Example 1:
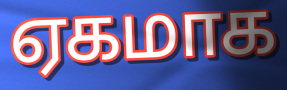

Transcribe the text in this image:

ஏகமாக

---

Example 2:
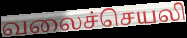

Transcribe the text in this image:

வலைச்செயலி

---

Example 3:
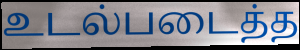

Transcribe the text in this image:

உடல்படைத்த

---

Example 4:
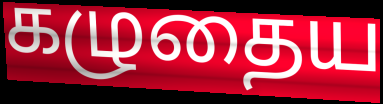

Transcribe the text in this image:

கழுதைய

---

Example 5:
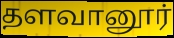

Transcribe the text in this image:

தளவானூர்